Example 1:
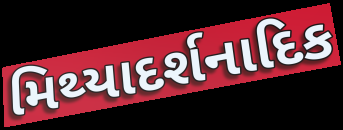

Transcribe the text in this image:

મિથ્યાદર્શનાદિક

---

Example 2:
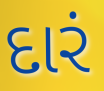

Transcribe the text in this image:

દારં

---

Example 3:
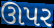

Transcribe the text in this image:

ઊપર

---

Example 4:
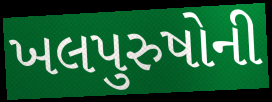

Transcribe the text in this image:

ખલપુરુષોની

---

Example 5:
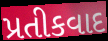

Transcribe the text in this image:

પ્રતીકવાદ